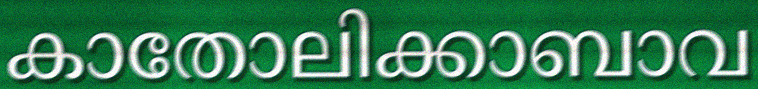
കാതോലിക്കാബാവ